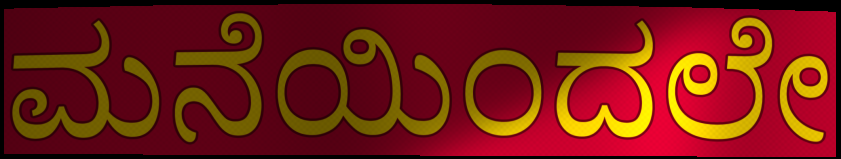
ಮನೆಯಿಂದಲೇ